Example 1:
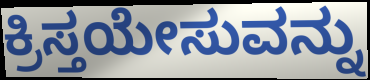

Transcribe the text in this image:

ಕ್ರಿಸ್ತಯೇಸುವನ್ನು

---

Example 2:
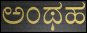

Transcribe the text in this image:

ಅಂಥಹ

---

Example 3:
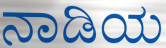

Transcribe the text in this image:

ನಾಡಿಯ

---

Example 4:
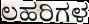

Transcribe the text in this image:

ಲಹರಿಗಳ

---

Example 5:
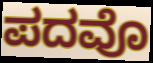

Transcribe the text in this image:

ಪದವೊ